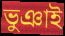
ভুঞাই